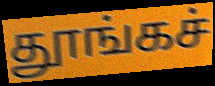
தூங்கச்